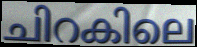
ചിറകിലെ